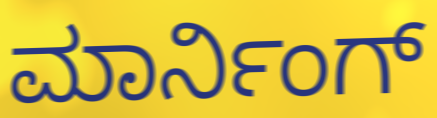
ಮಾರ್ನಿಂಗ್